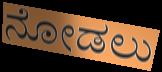
ನೋಡಲು